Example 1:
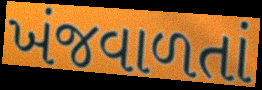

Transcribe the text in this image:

ખંજવાળતાં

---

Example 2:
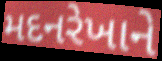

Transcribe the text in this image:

મદનરેખાને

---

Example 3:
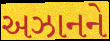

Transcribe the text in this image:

અઝાનને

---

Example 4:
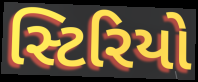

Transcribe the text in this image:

સ્ટિરિયો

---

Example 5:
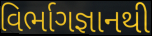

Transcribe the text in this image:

વિર્ભાગજ્ઞાનથી